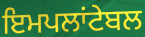
ਇਮਪਲਾਂਟੇਬਲ